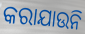
କରାଯାଉନି